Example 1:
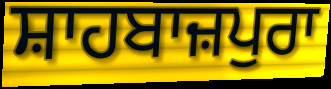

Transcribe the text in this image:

ਸ਼ਾਹਬਾਜ਼ਪੁਰਾ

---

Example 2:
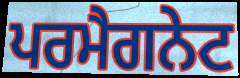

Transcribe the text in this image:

ਪਰਮੈਗਨੇਟ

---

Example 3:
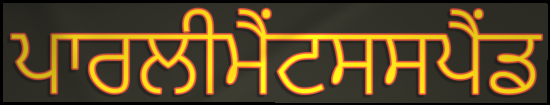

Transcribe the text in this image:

ਪਾਰਲੀਮੈਂਟਸਸਪੈਂਡ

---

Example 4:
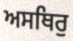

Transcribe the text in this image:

ਅਸਥਿਰੁ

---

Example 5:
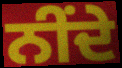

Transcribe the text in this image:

ਨੀਂਦੇ